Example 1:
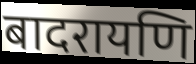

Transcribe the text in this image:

बादरायणि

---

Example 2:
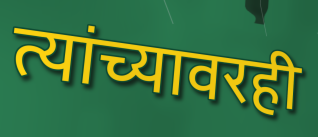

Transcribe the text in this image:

त्यांच्यावरही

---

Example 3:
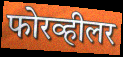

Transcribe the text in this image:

फोरव्हीलर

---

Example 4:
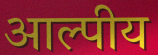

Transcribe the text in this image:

आल्पीय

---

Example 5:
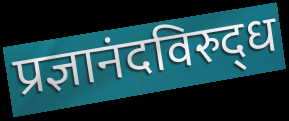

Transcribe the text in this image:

प्रज्ञानंदविरुद्ध